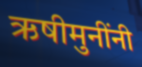
ऋषीमुनींनी